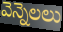
వెన్నెలలు